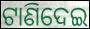
ଟାଣିଦେଇ